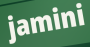
jamini